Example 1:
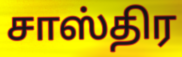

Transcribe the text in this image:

சாஸ்திர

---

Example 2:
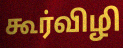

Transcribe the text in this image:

கூர்விழி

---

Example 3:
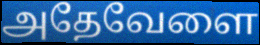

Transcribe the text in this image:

அதேவேளை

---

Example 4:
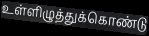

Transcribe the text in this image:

உள்ளிழுத்துக்கொண்டு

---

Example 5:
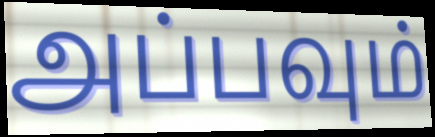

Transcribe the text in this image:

அப்பவும்